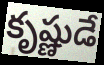
కృష్ణుడే